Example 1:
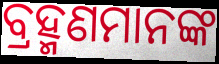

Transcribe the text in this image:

ବ୍ରହ୍ମଣମାନଙ୍କ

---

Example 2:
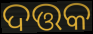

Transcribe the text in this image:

ଦତ୍ତକ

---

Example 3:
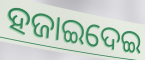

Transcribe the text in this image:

ହଜାଇଦେଇ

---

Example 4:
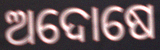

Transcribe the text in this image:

ଅଦୋଷେ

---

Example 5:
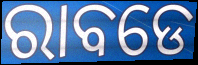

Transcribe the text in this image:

ରାବଡେ